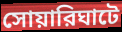
সোয়ারিঘাটে